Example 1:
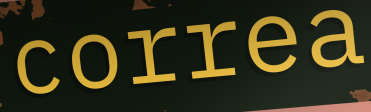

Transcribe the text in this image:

correa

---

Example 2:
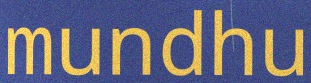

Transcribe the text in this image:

mundhu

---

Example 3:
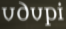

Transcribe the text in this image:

udupi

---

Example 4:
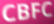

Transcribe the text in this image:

CBFC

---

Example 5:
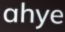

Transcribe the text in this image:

ahye